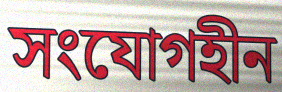
সংযোগহীন